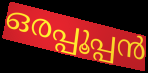
ഒരപ്പൂപ്പൻ